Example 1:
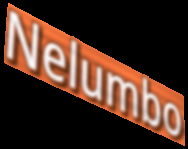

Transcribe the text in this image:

Nelumbo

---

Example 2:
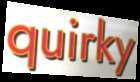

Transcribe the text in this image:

quirky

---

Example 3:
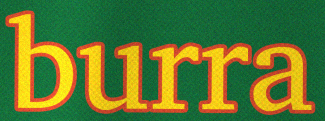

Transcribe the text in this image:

burra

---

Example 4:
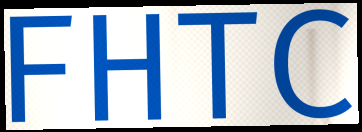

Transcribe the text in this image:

FHTC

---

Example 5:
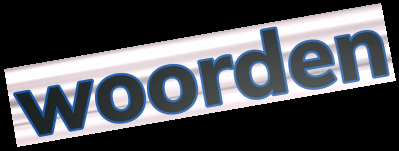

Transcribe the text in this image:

woorden